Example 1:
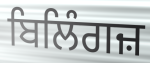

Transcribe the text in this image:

ਬਿਲਿੰਗਜ਼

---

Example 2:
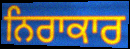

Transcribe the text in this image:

ਨਿਰਾਕਾਰ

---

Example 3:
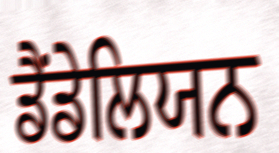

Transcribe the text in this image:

ਡੈਂਡੇਲਿਯਨ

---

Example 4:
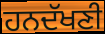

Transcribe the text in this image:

ਹਨਦੱਖਣੀ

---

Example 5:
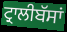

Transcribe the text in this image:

ਟ੍ਰਾਲੀਬੱਸਾਂ